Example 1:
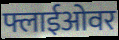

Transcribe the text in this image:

फ्लाईओवर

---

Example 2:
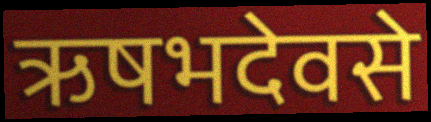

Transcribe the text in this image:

ऋषभदेवसे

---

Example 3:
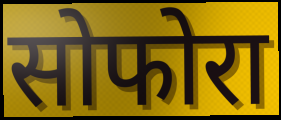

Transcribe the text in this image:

सोफोरा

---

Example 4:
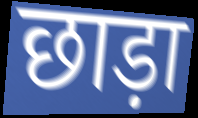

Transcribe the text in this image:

छाड़ा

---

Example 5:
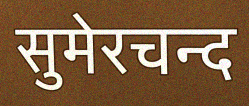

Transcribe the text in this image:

सुमेरचन्द